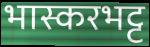
भास्करभट्ट